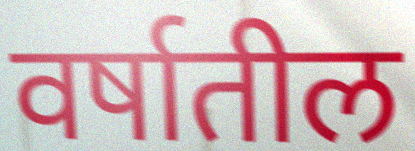
वर्षातील